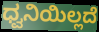
ಧ್ವನಿಯಿಲ್ಲದೆ